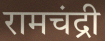
रामचंद्री